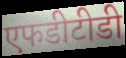
एफडीटीडी